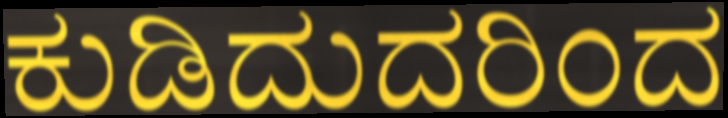
ಕುಡಿದುದರಿಂದ